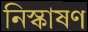
নিস্কাষণ